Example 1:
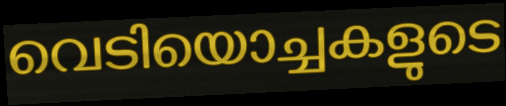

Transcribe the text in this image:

വെടിയൊച്ചകളുടെ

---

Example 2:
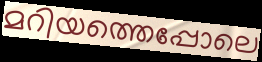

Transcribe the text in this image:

മറിയത്തെപ്പോലെ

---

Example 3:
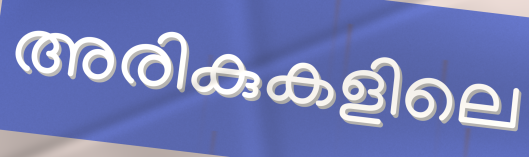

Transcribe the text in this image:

അരികുകളിലെ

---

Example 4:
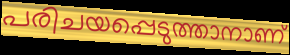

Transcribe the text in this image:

പരിചയപ്പെടുത്താനാണ്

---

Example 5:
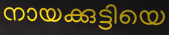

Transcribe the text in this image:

നായക്കുട്ടിയെ